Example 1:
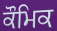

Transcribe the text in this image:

ਕੌਮਿਕ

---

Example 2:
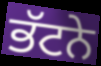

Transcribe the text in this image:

ਭੱਟਨੇ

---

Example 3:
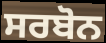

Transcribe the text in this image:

ਸਰਬੋਨ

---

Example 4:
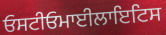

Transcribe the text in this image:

ਓਸਟੀਓਮਾਈਲਾਇਟਿਸ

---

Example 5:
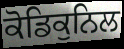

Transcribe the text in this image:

ਕੋਡਿਕੁਨਿਲ